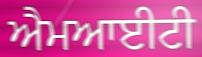
ਐਮਆਈਟੀ